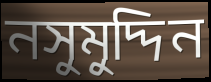
নসুমুদ্দিন